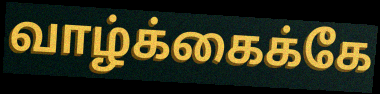
வாழ்க்கைக்கே